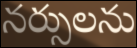
నర్సులను